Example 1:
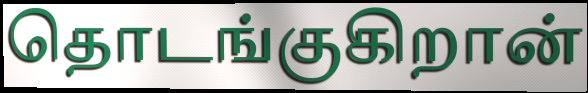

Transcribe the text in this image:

தொடங்குகிறான்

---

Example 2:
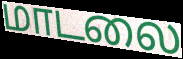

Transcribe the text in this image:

மாடலை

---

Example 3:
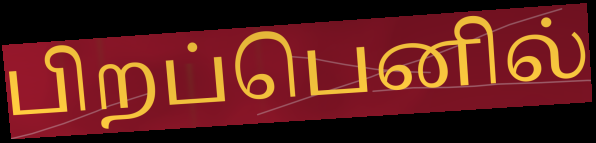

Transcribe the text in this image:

பிறப்பெனில்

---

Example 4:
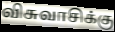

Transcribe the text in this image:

விசுவாசிக்கு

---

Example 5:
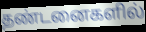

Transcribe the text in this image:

தண்டனைகளில்